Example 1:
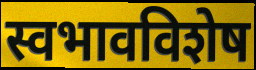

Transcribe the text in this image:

स्वभावविशेष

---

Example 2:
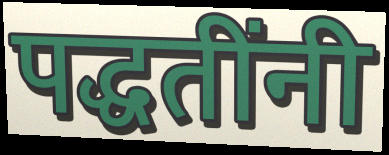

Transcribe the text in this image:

पद्धतींनी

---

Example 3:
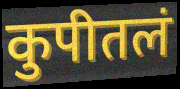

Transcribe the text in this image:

कुपीतलं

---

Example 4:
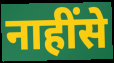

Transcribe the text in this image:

नाहींसे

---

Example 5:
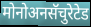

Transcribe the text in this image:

मोनोअनसॅचुरेटेड